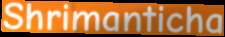
Shrimanticha